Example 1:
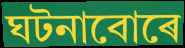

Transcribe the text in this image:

ঘটনাবোৰে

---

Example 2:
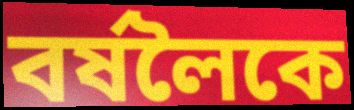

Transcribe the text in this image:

বৰ্ষলৈকে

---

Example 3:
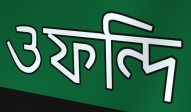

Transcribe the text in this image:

ওফন্দি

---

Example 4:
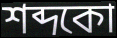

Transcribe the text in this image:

শব্দকো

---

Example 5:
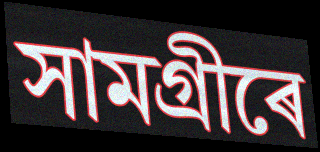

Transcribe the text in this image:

সামগ্ৰীৰে